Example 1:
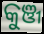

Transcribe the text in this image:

କୁଞ୍ଜ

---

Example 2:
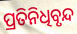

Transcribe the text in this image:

ପ୍ରତିନିଧିବୃନ୍ଦ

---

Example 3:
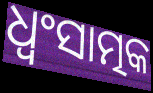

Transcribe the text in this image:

ଧ୍ଵଂସାତ୍ମକ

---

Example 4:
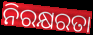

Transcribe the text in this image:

ନିରକ୍ଷରତା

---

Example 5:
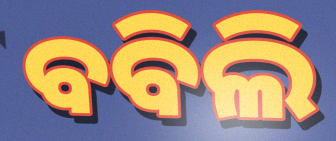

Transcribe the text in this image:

ବବିଲି